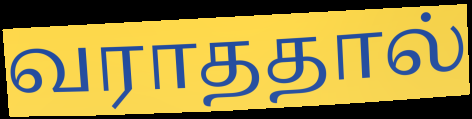
வராததால்